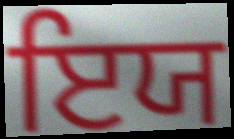
ਇਯ